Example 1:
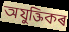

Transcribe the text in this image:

অযুক্তিকৰ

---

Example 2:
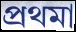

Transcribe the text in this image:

প্ৰথমা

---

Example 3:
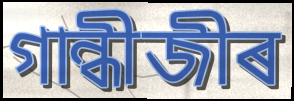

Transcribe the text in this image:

গান্ধীজীৰ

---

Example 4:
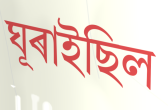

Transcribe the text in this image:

ঘূৰাইছিল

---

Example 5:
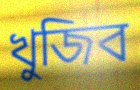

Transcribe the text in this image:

খুজিব